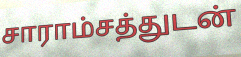
சாராம்சத்துடன்